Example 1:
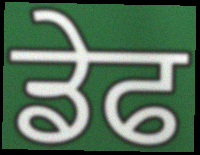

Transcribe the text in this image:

ਡੇਫ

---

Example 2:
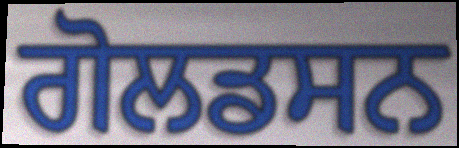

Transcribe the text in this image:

ਗੋਲਡਸਨ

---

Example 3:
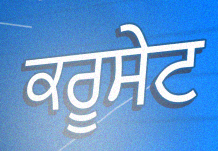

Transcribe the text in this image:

ਕਰੂਸੇਟ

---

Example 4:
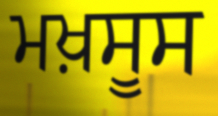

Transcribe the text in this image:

ਮਖ਼ਸੂਸ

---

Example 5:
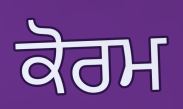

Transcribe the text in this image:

ਕੋਰਮ